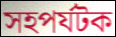
সহপর্যটক